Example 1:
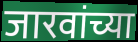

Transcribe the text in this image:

जारवांच्या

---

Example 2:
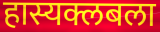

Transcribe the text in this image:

हास्यक्लबला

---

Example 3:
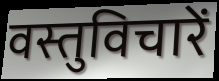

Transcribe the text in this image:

वस्तुविचारें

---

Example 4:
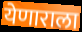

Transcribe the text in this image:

येणाराला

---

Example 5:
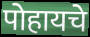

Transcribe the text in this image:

पोहायचे